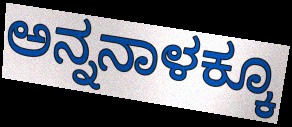
ಅನ್ನನಾಳಕ್ಕೂ